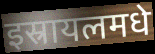
इस्रायलमधे